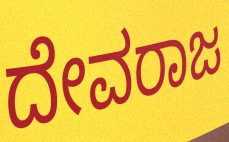
ದೇವರಾಜ